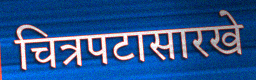
चित्रपटासारखे